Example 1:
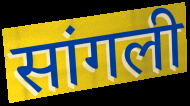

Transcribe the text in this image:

सांगली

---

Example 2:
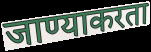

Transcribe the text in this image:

जाण्याकरता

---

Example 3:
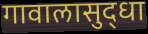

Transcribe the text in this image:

गावालासुद्धा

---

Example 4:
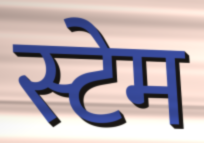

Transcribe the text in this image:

स्टेम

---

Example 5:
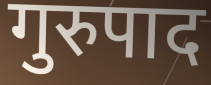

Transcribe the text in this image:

गुरुपाद